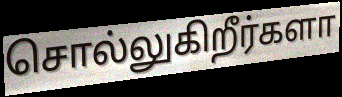
சொல்லுகிறீர்களா